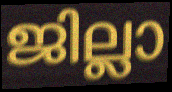
ജില്ലാ